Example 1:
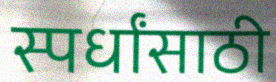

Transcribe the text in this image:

स्पर्धांसाठी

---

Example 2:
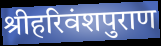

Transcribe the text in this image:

श्रीहरिवंशपुराण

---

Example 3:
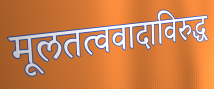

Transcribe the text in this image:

मूलतत्ववादाविरुद्ध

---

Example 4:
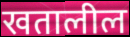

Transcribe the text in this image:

खतालील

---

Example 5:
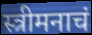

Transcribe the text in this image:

स्त्रीमनाचं